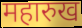
महारुख